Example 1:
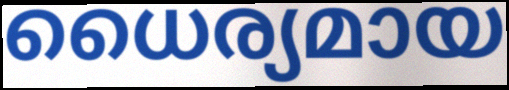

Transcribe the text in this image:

ധൈര്യമായ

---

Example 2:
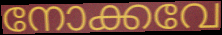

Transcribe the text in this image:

നോക്കവേ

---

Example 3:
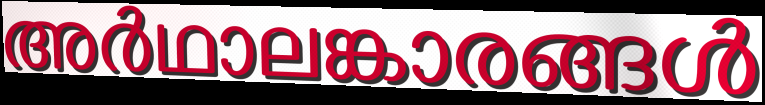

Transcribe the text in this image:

അർഥാലങ്കാരങ്ങൾ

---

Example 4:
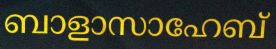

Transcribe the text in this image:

ബാളാസാഹേബ്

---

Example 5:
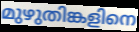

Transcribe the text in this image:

മുഴുതിങ്കളിനെ